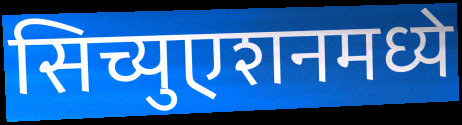
सिच्युएशनमध्ये